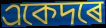
একেদৰে